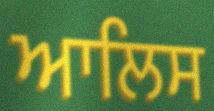
ਆਲਿਸ